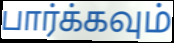
பார்க்கவும்